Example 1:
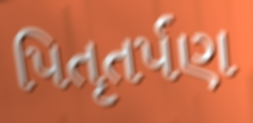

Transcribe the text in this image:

પિતૃતર્પણ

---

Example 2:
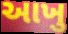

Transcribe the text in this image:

આખુ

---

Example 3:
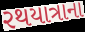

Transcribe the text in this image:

રથયાત્રાના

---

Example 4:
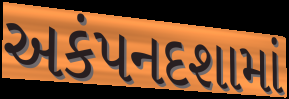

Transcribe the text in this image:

અકંપનદશામાં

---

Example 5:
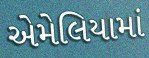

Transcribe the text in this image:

એમેલિયામાં